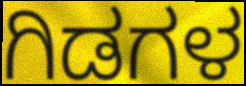
ಗಿಡಗಳ